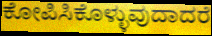
ಕೋಪಿಸಿಕೊಳ್ಳುವುದಾದರೆ